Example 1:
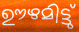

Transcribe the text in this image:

ഊഴമിട്ടു്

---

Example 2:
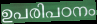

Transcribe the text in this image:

ഉപരിപഠനം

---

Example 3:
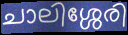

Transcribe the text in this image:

ചാലിശ്ശേരി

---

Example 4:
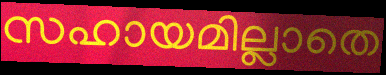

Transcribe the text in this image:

സഹായമില്ലാതെ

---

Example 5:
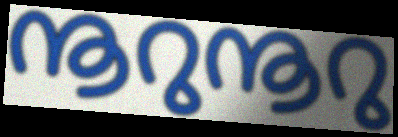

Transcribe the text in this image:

നൂറുനൂറു